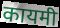
कायमी